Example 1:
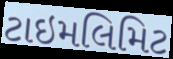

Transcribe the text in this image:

ટાઇમલિમિટ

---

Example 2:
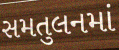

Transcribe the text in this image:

સમતુલનમાં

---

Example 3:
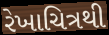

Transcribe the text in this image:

રેખાચિત્રથી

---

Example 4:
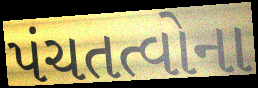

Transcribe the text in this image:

પંચતત્વોના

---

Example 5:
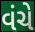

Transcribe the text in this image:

વંચે